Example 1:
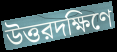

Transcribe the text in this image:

উত্তরদক্ষিণে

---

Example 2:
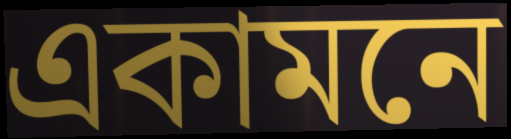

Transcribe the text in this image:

একামনে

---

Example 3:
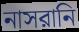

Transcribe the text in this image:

নাসরানি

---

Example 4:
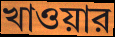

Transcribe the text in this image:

খাওয়ার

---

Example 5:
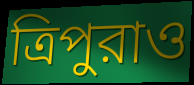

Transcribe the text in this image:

ত্রিপুরাও